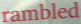
rambled